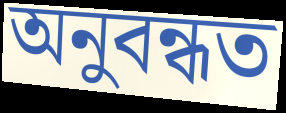
অনুবন্ধত